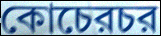
কোচেরচর